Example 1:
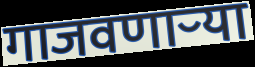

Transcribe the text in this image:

गाजवणाऱ्या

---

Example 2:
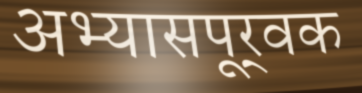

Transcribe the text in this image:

अभ्यासपूर्वक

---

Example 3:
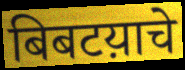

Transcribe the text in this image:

बिबटय़ाचे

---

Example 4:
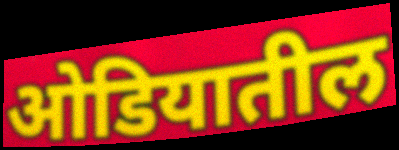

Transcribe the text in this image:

ओडियातील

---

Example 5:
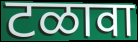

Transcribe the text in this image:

टळावा